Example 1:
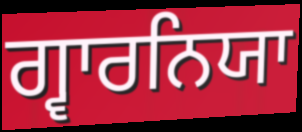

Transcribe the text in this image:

ਗ੍ਵਾਰਨਿਯਾ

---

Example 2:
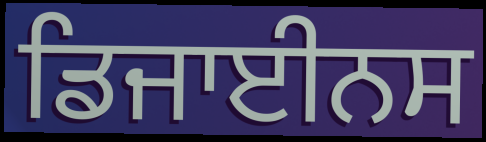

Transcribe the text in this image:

ਡਿਜਾਈਨਸ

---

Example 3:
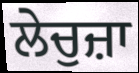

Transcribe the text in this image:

ਲੇਚੁਜ਼ਾ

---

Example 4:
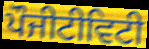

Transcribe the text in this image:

ਪੌਜੀਟੀਵਿਟੀ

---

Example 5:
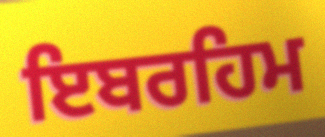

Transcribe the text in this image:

ਇਬਰਹਿਮ